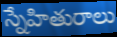
స్నేహితురాలు